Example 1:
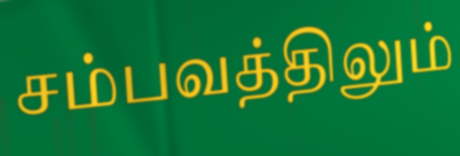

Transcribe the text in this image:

சம்பவத்திலும்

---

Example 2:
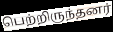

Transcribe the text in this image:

பெற்றிருந்தனர்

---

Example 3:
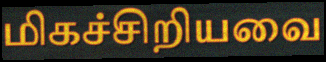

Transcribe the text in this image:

மிகச்சிறியவை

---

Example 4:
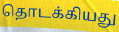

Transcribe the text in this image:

தொடக்கியது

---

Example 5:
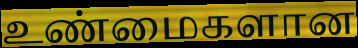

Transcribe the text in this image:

உண்மைகளான